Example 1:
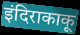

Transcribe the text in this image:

इंदिराकाकू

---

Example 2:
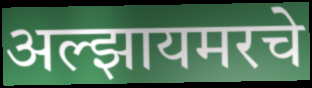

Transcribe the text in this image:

अल्झायमरचे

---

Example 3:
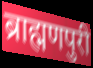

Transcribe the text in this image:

ब्राह्मणपुरी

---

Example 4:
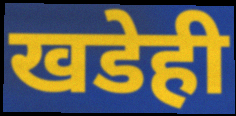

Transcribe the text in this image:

खडेही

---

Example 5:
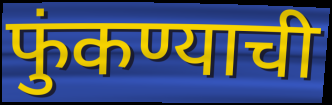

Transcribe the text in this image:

फुंकण्याची